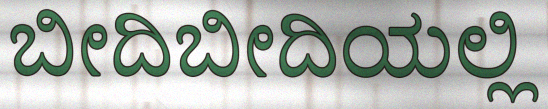
ಬೀದಿಬೀದಿಯಲ್ಲಿ